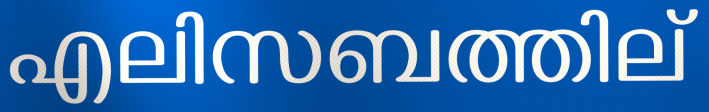
എലിസബത്തില്